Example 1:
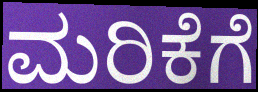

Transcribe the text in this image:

ಮರಿಕೆಗೆ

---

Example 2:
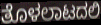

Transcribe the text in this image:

ತೊಳಲಾಟದಲಿ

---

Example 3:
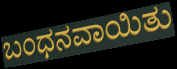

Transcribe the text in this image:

ಬಂಧನವಾಯಿತು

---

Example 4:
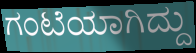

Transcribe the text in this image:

ಗಂಟೆಯಾಗಿದ್ದು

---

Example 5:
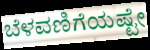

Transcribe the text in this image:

ಬೆಳವಣಿಗೆಯಷ್ಟೇ